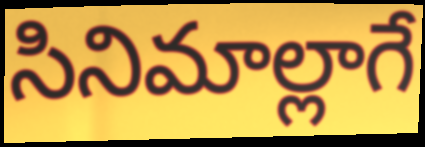
సినిమాల్లాగే